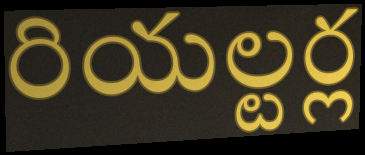
రియల్టర్ల